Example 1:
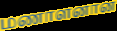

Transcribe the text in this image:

மணாளனான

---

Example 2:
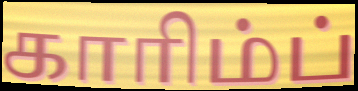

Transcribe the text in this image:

காரிம்ப்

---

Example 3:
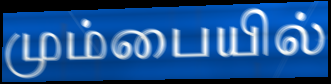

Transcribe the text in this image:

மும்பையில்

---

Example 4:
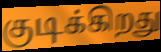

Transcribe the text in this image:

குடிக்கிறது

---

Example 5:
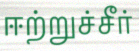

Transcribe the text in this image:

ஈற்றுச்சீர்